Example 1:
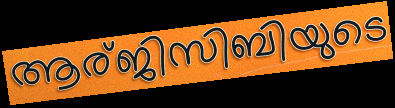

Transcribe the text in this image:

ആര്ജിസിബിയുടെ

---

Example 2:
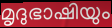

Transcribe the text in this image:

മൃദുഭാഷിയും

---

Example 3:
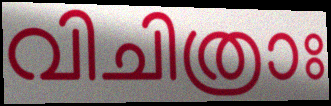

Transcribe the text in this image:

വിചിത്രാഃ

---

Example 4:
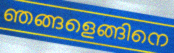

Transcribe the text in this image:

ഞങ്ങളെങ്ങിനെ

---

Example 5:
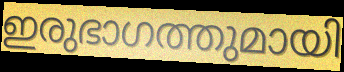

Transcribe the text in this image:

ഇരുഭാഗത്തുമായി